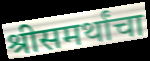
श्रीसमर्थांचा